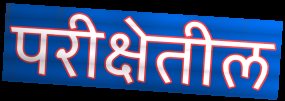
परीक्षेतील